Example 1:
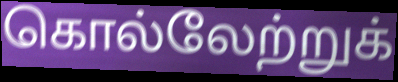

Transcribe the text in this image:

கொல்லேற்றுக்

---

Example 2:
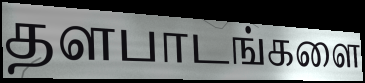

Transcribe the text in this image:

தளபாடங்களை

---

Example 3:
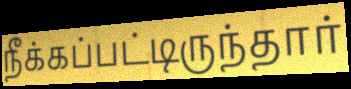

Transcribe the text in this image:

நீக்கப்பட்டிருந்தார்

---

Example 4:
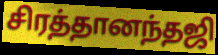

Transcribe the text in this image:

சிரத்தானந்தஜி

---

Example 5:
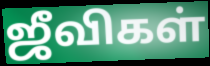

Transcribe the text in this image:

ஜீவிகள்